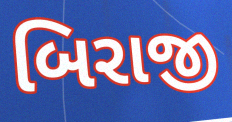
બિરાજી